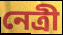
নেত্রী